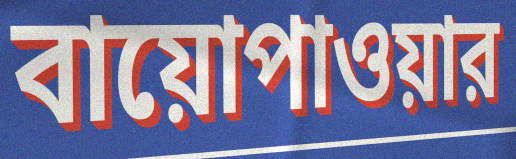
বায়োপাওয়ার